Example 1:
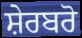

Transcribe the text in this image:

ਸ਼ੇਰਬਰੋ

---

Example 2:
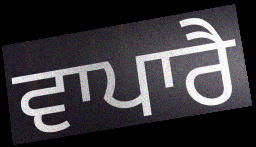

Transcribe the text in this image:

ਵਾਪਾਰੈ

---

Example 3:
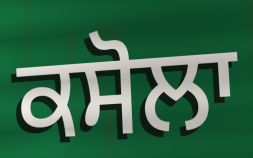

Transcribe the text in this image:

ਕਸੋਲਾ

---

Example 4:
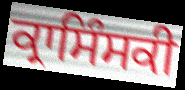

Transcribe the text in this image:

ਕ੍ਰਾਸਿੰਸਕੀ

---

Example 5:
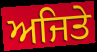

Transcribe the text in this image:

ਅਜਿਤੇ